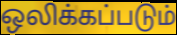
ஒலிக்கப்படும்